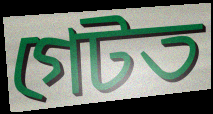
গেটত